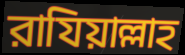
রাযিয়াল্লাহ